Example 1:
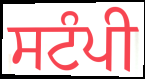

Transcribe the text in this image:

ਸਟੰਪੀ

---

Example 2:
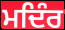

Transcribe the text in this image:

ਮਦਿੰਰ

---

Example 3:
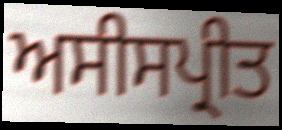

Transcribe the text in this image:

ਅਸੀਸਪ੍ਰੀਤ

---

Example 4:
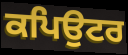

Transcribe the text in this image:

ਕਪਿਉਟਰ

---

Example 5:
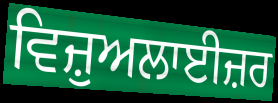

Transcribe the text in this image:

ਵਿਜ਼ੁਅਲਾਈਜ਼ਰ